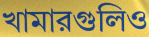
খামারগুলিও